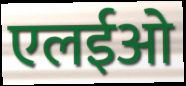
एलईओ